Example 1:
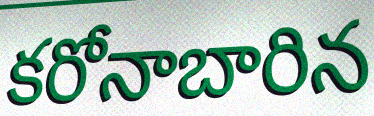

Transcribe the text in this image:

కరోనాబారిన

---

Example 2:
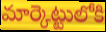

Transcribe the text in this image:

మార్కెట్టులోకి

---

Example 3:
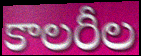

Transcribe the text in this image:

కాలరీల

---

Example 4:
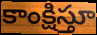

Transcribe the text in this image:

కాంక్షిస్తూ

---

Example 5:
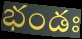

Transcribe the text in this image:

భండః